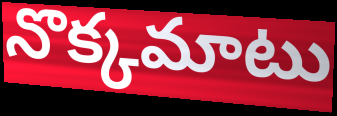
నొక్కమాటు